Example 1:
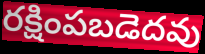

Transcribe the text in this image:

రక్షింపబడెదవు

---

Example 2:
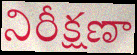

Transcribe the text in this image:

నిరీక్షణా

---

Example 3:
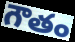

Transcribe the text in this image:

గౌతం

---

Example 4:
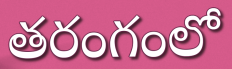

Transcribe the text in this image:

తరంగంలో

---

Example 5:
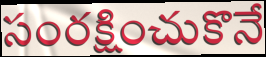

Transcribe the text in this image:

సంరక్షించుకొనే